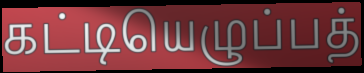
கட்டியெழுப்பத்